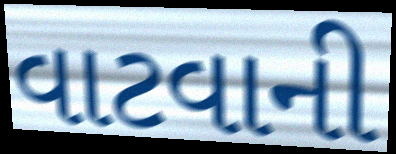
વાટવાની